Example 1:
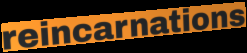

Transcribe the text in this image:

reincarnations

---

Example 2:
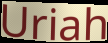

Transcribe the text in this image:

Uriah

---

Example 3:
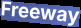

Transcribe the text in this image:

Freeway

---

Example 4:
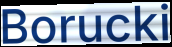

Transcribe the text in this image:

Borucki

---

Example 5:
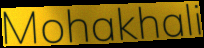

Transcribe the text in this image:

Mohakhali